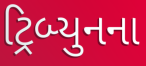
ટ્રિબ્યુનના